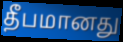
தீபமானது